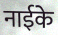
नाईके